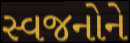
સ્વજનોને